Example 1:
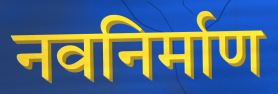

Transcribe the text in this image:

नवनिर्माण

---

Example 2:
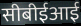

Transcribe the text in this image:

सीबीईआई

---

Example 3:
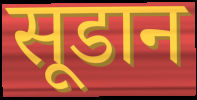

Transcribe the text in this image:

सूडान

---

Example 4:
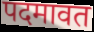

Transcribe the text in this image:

पदमावत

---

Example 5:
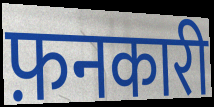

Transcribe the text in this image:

फ़नकारी